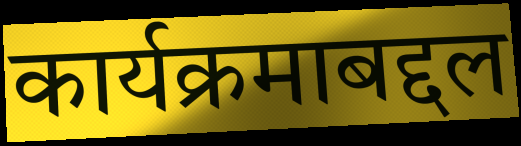
कार्यक्रमाबद्दल